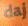
daj